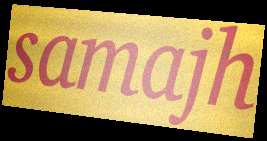
samajh